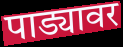
पाड्यावर